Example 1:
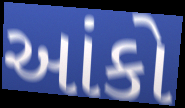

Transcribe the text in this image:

આંકો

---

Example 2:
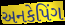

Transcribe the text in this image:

અનકેપિંગ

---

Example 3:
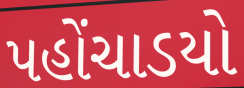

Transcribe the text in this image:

પહોંચાડયો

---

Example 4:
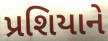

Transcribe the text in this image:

પ્રશિયાને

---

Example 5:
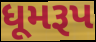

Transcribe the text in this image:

ધૂમરૂપ